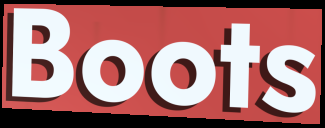
Boots